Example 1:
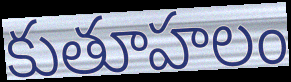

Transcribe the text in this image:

కుతూహలం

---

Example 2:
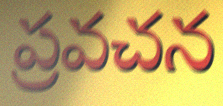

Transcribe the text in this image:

ప్రవచన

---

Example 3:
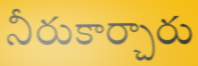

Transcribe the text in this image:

నీరుకార్చారు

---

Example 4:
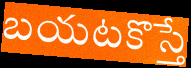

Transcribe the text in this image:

బయటకొస్తే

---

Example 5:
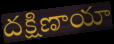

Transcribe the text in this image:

దక్షిణాయా